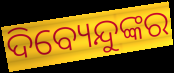
ଦିବ୍ୟେନ୍ଦୁଙ୍କର